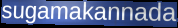
sugamakannada